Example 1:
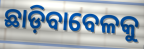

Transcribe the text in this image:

ଛାଡ଼ିବାବେଳକୁ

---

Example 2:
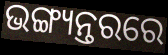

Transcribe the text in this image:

ଭଙ୍ଗ୍ୟନ୍ତରରେ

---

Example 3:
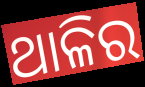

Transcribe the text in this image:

ଥାଳିର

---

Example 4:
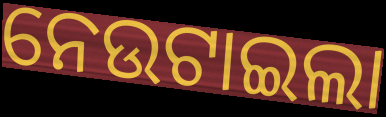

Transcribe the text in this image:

ନେଉଟାଇଲା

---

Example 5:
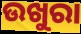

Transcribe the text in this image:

ଉଖୁରା